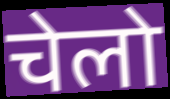
चेलो